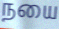
நயை